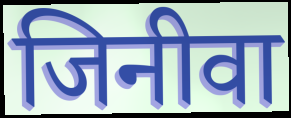
जिनीवा